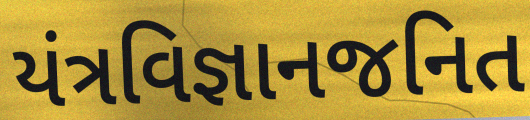
યંત્રવિજ્ઞાનજનિત